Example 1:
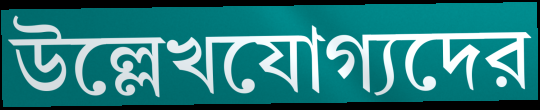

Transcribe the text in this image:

উল্লেখযোগ্যদের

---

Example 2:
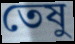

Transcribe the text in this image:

তেষু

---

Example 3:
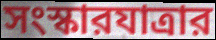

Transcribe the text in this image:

সংস্কারযাত্রার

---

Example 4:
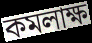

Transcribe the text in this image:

কমলাক্ষ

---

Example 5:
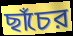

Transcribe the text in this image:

ছাঁচের